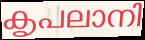
കൃപലാനി